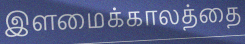
இளமைக்காலத்தை